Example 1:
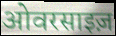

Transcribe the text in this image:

ओवरसाइज़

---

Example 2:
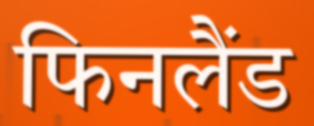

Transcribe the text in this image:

फिनलैंड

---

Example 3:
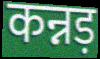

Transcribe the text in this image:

कन्नड़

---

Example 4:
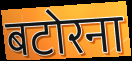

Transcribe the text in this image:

बटोरना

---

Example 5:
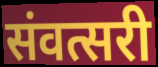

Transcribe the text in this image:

संवत्सरी